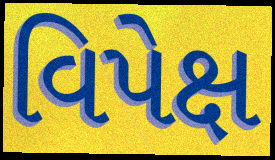
વિપેક્ષ